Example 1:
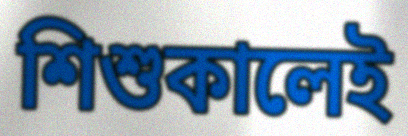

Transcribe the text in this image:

শিশুকালেই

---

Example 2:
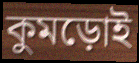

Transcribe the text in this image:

কুমড়োই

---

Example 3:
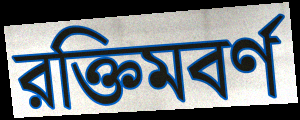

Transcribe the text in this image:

রক্তিমবর্ণ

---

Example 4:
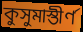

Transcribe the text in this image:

কুসুমাস্তীর্ণ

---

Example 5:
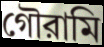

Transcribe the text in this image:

গৌরামি